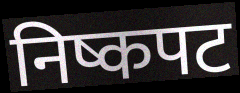
निष्कपट